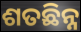
ଶତଛିନ୍ନ